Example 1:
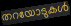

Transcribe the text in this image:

തറയോടുകൾ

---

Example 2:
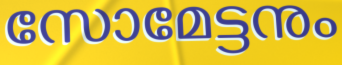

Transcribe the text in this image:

സോമേട്ടനും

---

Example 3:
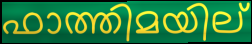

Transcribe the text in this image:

ഫാത്തിമയില്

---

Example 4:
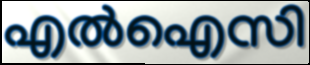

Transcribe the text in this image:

എൽഐസി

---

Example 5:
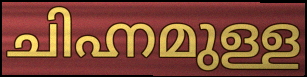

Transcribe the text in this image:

ചിഹ്നമുള്ള